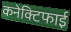
कनेक्टिफाई